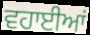
ਵਹਾਈਆਂ